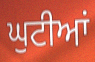
ਘੁਟੀਆਂ